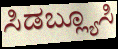
ಸಿಡಬ್ಲ್ಯೂಸಿ